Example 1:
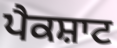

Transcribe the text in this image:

ਪੈਕਸ਼ਾਟ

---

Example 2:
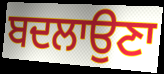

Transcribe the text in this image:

ਬਦਲਾਉਣਾ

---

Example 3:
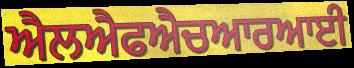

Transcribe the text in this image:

ਐਲਐਫਐਚਆਰਆਈ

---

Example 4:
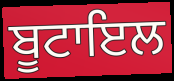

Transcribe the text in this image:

ਬੂਟਾਇਲ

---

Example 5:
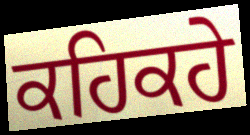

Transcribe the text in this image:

ਕਹਿਕਹੇ